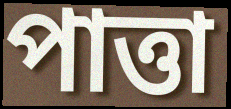
পাত্তা